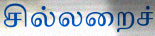
சில்லறைச்